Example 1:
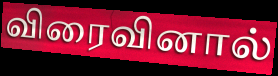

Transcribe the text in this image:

விரைவினால்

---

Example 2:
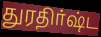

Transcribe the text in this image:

துரதிர்ஷ்ட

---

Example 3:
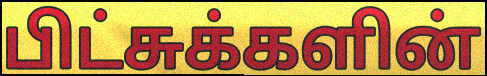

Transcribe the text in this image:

பிட்சுக்களின்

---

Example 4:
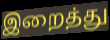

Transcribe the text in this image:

இறைத்து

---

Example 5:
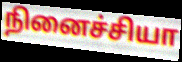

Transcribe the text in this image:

நினைச்சியா